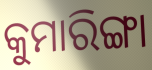
କୁମାରିଙ୍ଗା